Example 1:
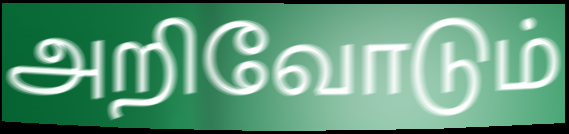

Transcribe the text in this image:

அறிவோடும்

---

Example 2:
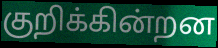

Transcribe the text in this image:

குறிக்கின்றன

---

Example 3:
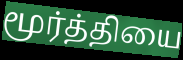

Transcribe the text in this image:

மூர்த்தியை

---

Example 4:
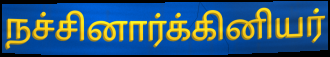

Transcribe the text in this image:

நச்சினார்க்கினியர்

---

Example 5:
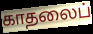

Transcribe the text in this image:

காதலைப்